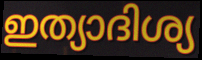
ഇത്യാദിശ്യ